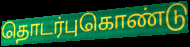
தொடர்புகொண்டு